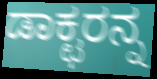
ಡಾಕ್ಟರನ್ನ